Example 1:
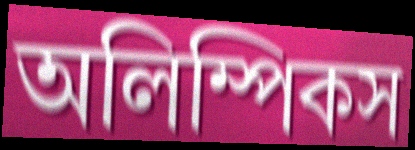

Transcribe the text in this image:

অলিম্পিকস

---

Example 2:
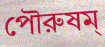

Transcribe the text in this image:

পৌরুষম্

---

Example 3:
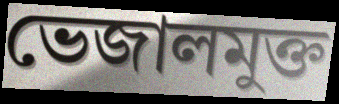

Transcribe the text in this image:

ভেজালমুক্ত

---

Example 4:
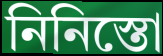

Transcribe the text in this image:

নিনিস্তো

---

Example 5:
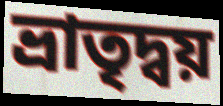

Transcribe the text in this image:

ভ্রাতৃদ্বয়